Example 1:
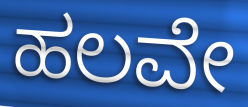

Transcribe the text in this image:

ಹಲವೇ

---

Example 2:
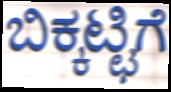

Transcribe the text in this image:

ಬಿಕ್ಕಟ್ಟಿಗೆ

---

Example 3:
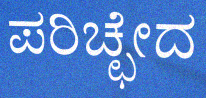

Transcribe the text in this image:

ಪರಿಚ್ಛೇದ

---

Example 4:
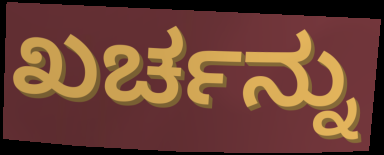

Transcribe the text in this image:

ಖರ್ಚನ್ನು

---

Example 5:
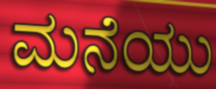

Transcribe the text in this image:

ಮನೆಯು